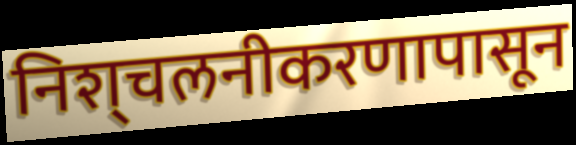
निश्चलनीकरणापासून